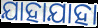
ଯାହାଯାହା